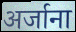
अर्जाना